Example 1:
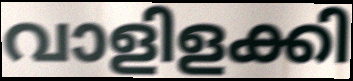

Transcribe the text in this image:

വാളിളക്കി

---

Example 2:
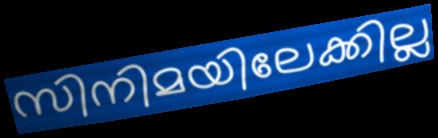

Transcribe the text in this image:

സിനിമയിലേക്കില്ല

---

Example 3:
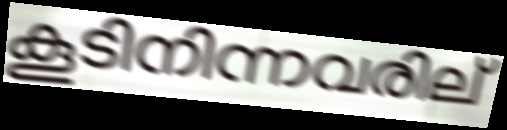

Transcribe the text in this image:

കൂടിനിന്നവരില്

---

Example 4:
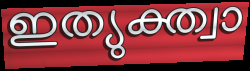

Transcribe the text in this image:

ഇത്യുക്ത്വാ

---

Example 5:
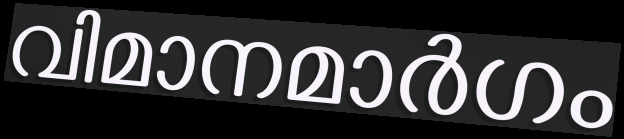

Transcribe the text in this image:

വിമാനമാർഗം